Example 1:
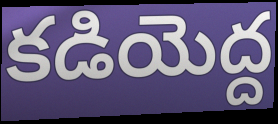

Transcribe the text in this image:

కడియెద్ద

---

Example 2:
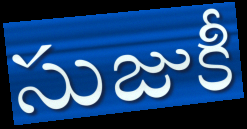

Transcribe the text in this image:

సుజుకీ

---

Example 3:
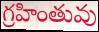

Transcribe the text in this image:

గ్రహింతువు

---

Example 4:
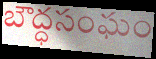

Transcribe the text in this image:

బౌద్ధసంఘం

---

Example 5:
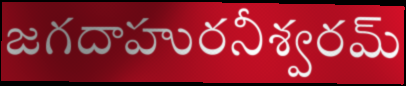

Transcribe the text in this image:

జగదాహురనీశ్వరమ్